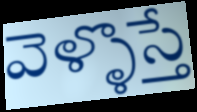
వెళ్ళొస్తే